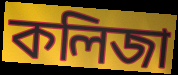
কলিজা